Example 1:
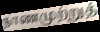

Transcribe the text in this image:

நாணமுற்றுத்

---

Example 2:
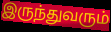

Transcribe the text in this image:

இருந்துவரும்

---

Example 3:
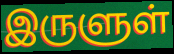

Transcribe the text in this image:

இருளுள்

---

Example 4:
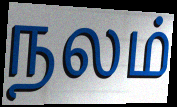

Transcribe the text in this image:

நலம்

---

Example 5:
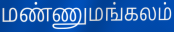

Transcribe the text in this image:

மண்ணுமங்கலம்